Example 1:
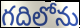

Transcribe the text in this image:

గదిలోను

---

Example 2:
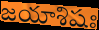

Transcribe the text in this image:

జయాశిషః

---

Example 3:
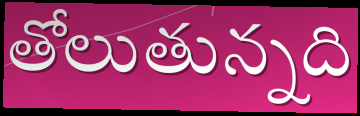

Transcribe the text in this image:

తోలుతున్నది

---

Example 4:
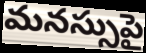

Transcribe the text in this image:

మనస్సుపై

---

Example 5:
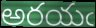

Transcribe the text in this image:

అరయఁ